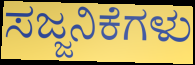
ಸಜ್ಜನಿಕೆಗಳು